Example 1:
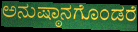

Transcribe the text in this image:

ಅನುಷ್ಠಾನಗೊಂಡರೆ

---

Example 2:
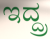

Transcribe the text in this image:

ಇದ್ದ್ರ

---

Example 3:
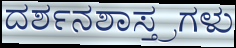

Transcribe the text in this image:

ದರ್ಶನಶಾಸ್ತ್ರಗಳು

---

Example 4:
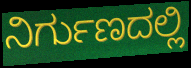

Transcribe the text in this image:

ನಿರ್ಗುಣದಲ್ಲಿ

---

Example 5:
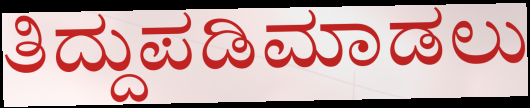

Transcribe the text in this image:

ತಿದ್ದುಪಡಿಮಾಡಲು